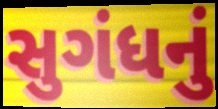
સુગંધનું